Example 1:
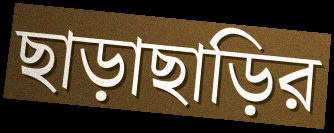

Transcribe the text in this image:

ছাড়াছাড়ির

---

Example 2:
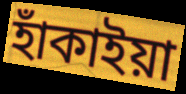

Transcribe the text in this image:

হাঁকাইয়া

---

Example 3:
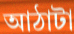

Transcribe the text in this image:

আঠাটা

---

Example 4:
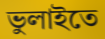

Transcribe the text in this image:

ভুলাইতে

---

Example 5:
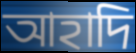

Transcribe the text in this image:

আহাদি